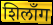
शिलाँग